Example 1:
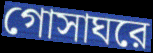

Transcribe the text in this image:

গোসাঘরে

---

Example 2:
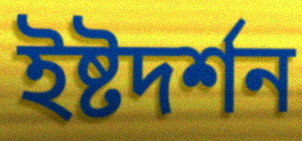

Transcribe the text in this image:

ইষ্টদর্শন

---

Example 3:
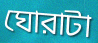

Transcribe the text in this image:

ঘোরাটা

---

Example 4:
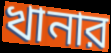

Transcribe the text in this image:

খানার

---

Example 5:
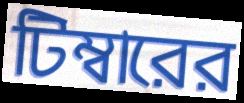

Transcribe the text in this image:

টিম্বারের